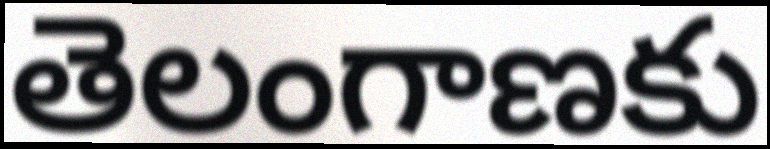
తెలంగాణకు